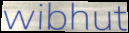
wibhut